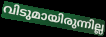
വിടുമായിരുന്നില്ല